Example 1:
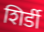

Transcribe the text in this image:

शिर्डी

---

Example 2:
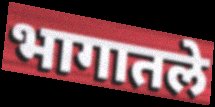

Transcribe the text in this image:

भागातले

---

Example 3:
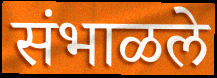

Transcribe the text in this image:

संभाळले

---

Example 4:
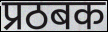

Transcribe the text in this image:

प्रठबक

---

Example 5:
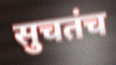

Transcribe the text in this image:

सुचतंच